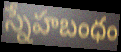
స్నేహబంధం